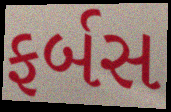
ફર્બસ